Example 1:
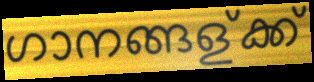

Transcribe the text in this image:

ഗാനങ്ങള്ക്ക്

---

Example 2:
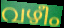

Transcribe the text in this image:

വഴീം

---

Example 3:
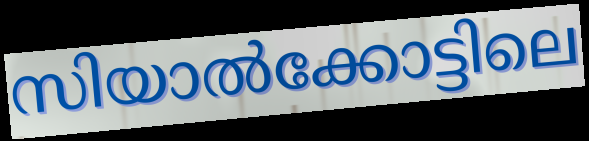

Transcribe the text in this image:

സിയാൽക്കോട്ടിലെ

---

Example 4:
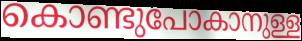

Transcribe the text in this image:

കൊണ്ടുപോകാനുള്ള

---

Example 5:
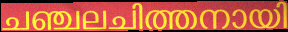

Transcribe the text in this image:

ചഞ്ചലചിത്തനായി